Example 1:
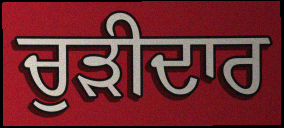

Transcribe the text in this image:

ਚੁੜੀਦਾਰ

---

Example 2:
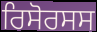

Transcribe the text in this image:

ਰਿਸੋਰਸਸ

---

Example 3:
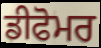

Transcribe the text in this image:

ਡੀਫੋਮਰ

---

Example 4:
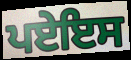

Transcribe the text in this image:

ਪਏਇਸ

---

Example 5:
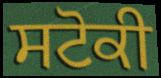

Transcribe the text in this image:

ਸਟੋਕੀ